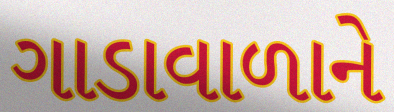
ગાડાવાળાને